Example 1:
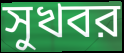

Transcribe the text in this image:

সুখবর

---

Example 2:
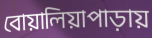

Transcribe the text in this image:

বোয়ালিয়াপাড়ায়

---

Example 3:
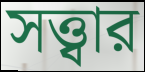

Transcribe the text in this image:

সত্ত্বার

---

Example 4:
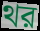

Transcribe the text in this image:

থর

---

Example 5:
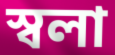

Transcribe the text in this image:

স্বলা